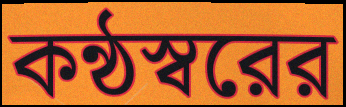
কন্ঠস্বরের